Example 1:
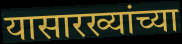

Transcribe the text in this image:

यासारख्यांच्या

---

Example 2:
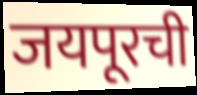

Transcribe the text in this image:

जयपूरची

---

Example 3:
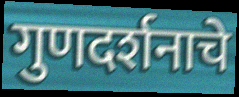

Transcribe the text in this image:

गुणदर्शनाचे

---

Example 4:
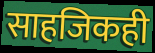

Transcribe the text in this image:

साहजिकही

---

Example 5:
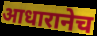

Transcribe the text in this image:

आधारानेच